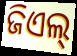
ଜିଏଲ୍